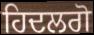
ਹਿਦਲਗੋ